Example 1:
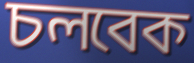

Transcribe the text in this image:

চলবেক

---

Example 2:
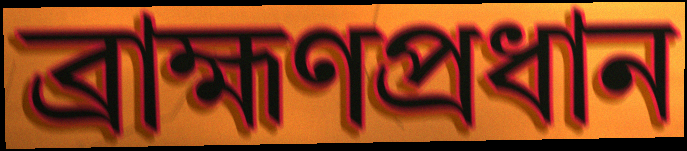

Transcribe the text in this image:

ব্রাহ্মণপ্রধান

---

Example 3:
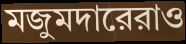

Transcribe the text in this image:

মজুমদারেরাও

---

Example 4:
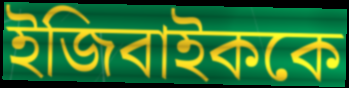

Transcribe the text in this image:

ইজিবাইককে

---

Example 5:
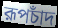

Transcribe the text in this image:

রূপচাঁদ